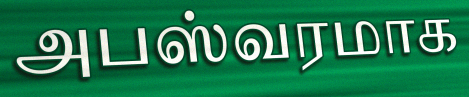
அபஸ்வரமாக